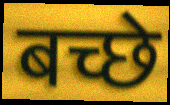
बच्छे